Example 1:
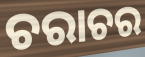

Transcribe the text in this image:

ଚରାଚର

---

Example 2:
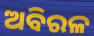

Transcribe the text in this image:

ଅବିରଳ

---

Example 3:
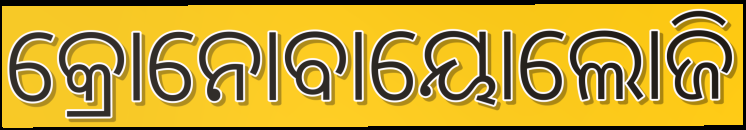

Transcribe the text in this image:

କ୍ରୋନୋବାୟୋଲୋଜି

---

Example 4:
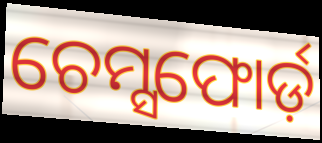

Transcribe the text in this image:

ଚେମ୍ସଫୋର୍ଡ଼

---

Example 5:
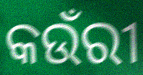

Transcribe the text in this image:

କଉଁରୀ